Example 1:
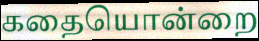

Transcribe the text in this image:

கதையொன்றை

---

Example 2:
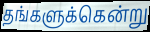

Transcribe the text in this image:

தங்களுக்கென்று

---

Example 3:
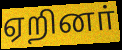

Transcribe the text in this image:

ஏறினர்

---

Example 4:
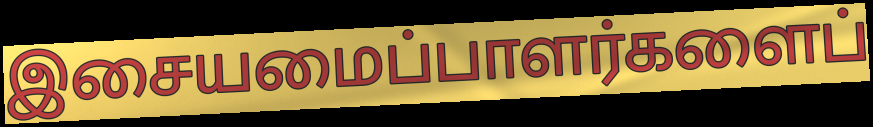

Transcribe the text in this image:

இசையமைப்பாளர்களைப்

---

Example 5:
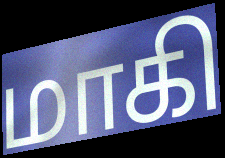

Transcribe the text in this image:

மாகி